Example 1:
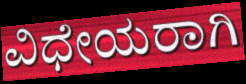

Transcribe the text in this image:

ವಿಧೇಯರಾಗಿ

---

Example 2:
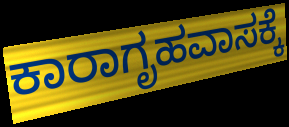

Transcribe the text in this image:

ಕಾರಾಗೃಹವಾಸಕ್ಕೆ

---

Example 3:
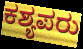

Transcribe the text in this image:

ಕಶ್ಯಪರು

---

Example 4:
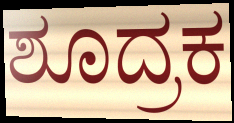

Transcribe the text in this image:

ಶೂದ್ರಕ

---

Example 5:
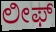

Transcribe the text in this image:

ಲೀಫ್